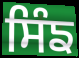
ਸਿੰਙ